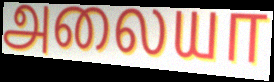
அலையா